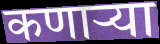
कणाऱ्या